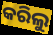
କରିଲୁ